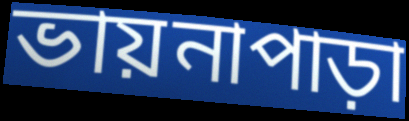
ভায়নাপাড়া